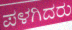
ಪಳಗಿದರು